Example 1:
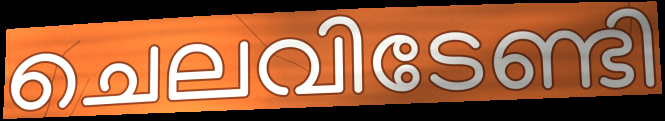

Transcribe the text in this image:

ചെലവിടേണ്ടി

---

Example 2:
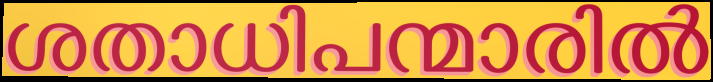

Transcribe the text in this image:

ശതാധിപന്മാരിൽ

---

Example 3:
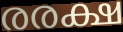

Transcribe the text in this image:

രരക്ഷ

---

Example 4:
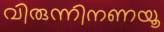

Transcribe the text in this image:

വിരുന്നിനണയൂ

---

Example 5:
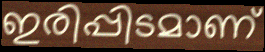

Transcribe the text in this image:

ഇരിപ്പിടമാണ്